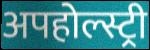
अपहोल्स्ट्री